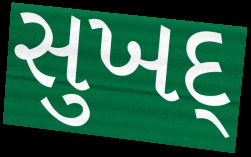
સુખદ્